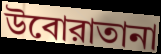
উবোরাতানা